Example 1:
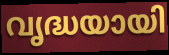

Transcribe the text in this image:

വൃദ്ധയായി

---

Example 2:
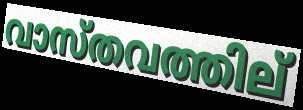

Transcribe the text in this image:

വാസ്തവത്തില്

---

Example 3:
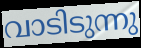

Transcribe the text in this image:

വാടിടുന്നു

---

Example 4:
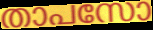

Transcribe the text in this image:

താപസോ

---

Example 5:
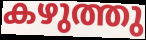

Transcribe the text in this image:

കഴുത്തു